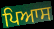
ਪਿਆਸ